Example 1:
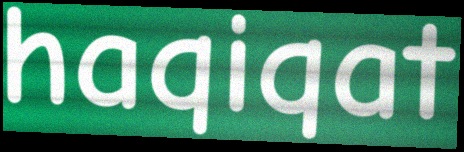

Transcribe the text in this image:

haqiqat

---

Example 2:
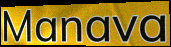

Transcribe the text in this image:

Manava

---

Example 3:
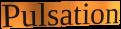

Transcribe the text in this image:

Pulsation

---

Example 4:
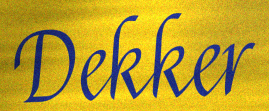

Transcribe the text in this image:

Dekker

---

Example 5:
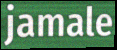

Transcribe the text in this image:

jamale